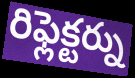
రిఫ్లెక్టర్ను